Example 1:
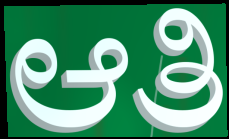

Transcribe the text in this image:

ಆತಿ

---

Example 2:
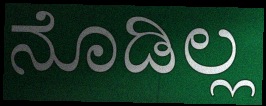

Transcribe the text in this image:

ನೊಡಿಲ್ಲ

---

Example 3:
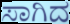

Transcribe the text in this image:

ಸಾಗಿದ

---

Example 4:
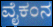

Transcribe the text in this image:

ವೈಕಂನ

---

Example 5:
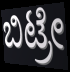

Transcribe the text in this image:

ಬಿಟ್ರೇ